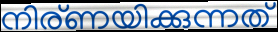
നിര്ണയിക്കുന്നത്